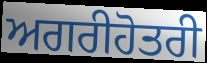
ਅਗਰੀਹੋਤਰੀ